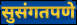
सुसंगतपणे